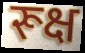
रूक्ष